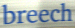
breech